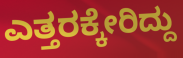
ಎತ್ತರಕ್ಕೇರಿದ್ದು